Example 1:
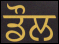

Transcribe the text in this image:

ਡੌਲ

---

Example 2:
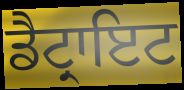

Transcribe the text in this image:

ਡੈਟ੍ਰਾਇਟ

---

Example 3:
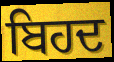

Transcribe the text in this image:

ਬਿਹਦ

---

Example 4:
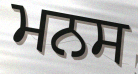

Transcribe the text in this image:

ਮਨਸ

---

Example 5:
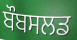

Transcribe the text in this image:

ਬੌਬਸਲਡ